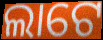
ଲାଟେ